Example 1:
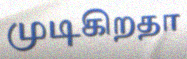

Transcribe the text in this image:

முடிகிறதா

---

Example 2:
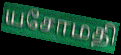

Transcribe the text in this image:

யசோமதி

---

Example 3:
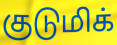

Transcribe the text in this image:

குடுமிக்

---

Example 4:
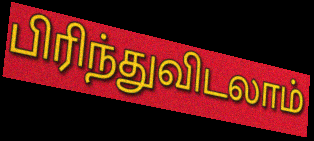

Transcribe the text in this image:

பிரிந்துவிடலாம்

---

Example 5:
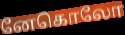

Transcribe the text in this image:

னேகொலோ